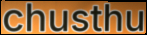
chusthu